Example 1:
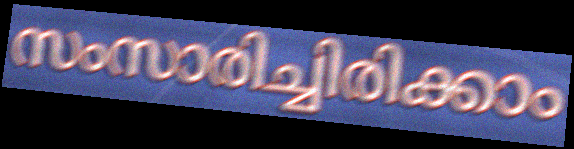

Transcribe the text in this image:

സംസാരിച്ചിരിക്കാം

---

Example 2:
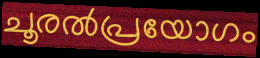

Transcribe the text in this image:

ചൂരൽപ്രയോഗം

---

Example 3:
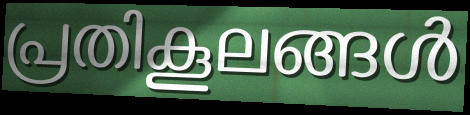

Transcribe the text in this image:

പ്രതികൂലങ്ങൾ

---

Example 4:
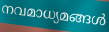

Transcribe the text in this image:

നവമാധ്യമങ്ങൾ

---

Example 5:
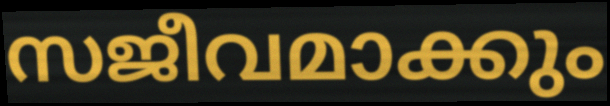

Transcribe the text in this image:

സജീവമാക്കും